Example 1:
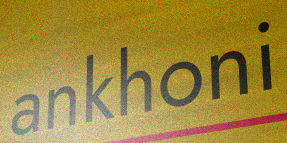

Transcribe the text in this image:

ankhoni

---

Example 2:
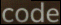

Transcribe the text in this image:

code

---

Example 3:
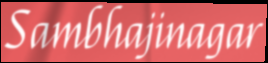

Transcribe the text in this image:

Sambhajinagar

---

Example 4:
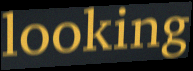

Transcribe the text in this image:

looking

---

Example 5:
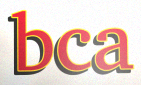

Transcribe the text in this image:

bca